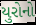
યુરોનો